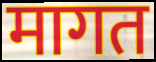
मागत